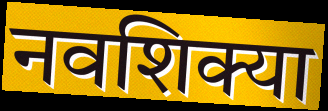
नवशिक्या